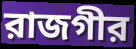
রাজগীর